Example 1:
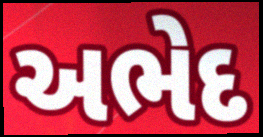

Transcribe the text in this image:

અભેદ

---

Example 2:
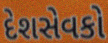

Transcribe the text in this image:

દેશસેવકો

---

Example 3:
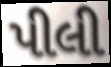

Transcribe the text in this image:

પીલી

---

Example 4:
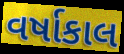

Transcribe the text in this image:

વર્ષાકાલ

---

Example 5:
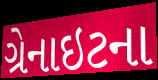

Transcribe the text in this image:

ગ્રેનાઇટના